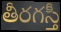
తీరగస్తీ